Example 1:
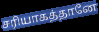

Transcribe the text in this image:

சரியாகத்தானே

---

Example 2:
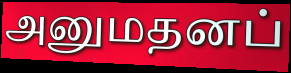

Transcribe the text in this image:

அனுமதனப்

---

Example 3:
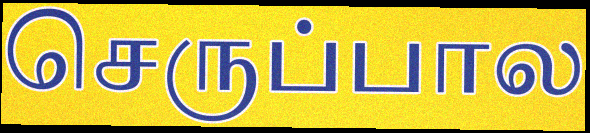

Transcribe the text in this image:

செருப்பால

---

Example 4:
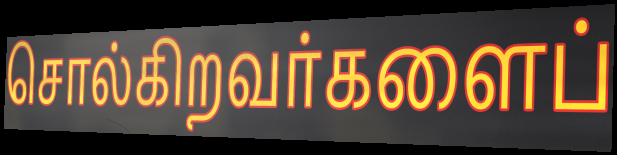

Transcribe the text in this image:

சொல்கிறவர்களைப்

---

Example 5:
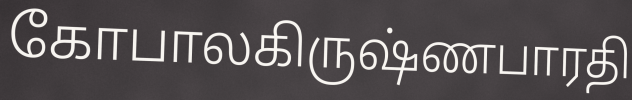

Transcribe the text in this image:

கோபாலகிருஷ்ணபாரதி